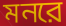
মনরে